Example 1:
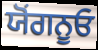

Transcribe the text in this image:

ਯੋਂਗਨੂਓ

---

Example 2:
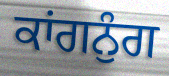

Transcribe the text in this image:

ਕਾਂਗਨੁੰਗ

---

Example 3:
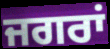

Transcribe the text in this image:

ਜਗਰਾਂ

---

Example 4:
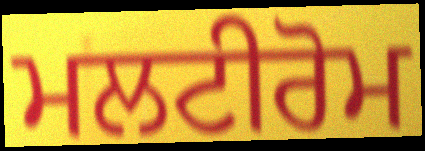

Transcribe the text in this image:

ਮਲਟੀਰੋਮ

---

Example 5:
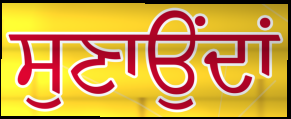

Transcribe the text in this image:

ਸੁਣਾਉਂਦਾਂ